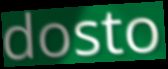
dosto